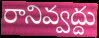
రానివ్వద్దు